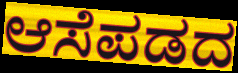
ಆಸೆಪಡದ